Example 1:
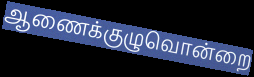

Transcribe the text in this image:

ஆணைக்குழுவொன்றை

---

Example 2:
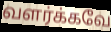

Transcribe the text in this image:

வளர்க்கவே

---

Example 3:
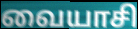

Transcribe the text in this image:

வையாசி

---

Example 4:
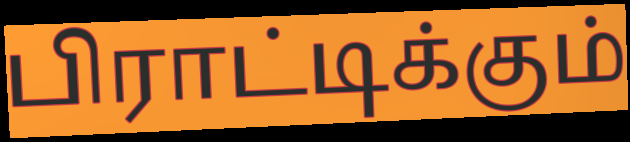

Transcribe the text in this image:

பிராட்டிக்கும்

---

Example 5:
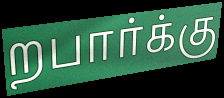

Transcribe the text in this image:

றபார்க்கு